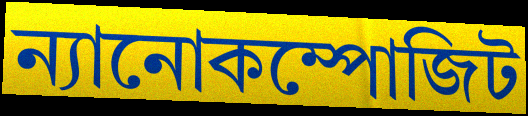
ন্যানোকম্পোজিট